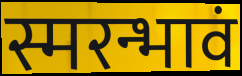
स्मरन्भावं